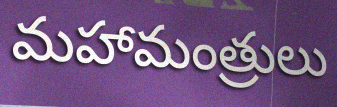
మహామంత్రులు